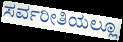
ಸರ್ವರೀತಿಯಲ್ಲೂ